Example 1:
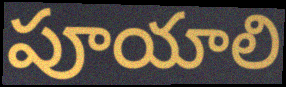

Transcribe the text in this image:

పూయాలి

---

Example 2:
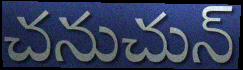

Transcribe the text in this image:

చనుచున్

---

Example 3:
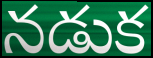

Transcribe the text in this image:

నడుక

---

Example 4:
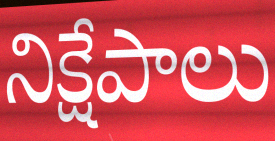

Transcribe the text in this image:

నిక్షేపాలు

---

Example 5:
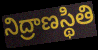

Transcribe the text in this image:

నిద్రాణస్థితి